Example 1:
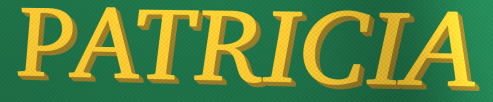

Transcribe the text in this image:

PATRICIA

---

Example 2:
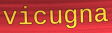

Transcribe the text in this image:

vicugna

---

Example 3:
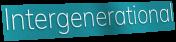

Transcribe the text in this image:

Intergenerational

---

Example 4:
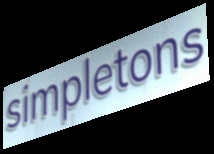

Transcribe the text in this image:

simpletons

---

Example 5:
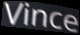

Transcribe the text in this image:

Vince